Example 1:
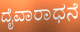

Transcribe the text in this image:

ದೈವಾರಾಧನೆ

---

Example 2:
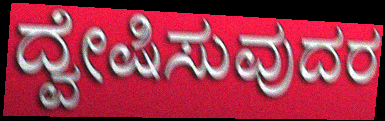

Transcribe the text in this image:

ದ್ವೇಷಿಸುವುದರ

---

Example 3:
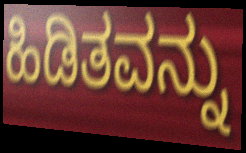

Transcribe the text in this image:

ಹಿಡಿತವನ್ನು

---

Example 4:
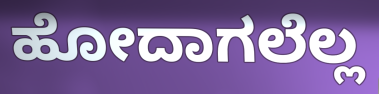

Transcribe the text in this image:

ಹೋದಾಗಲೆಲ್ಲ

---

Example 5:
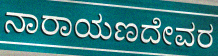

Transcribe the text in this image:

ನಾರಾಯಣದೇವರ